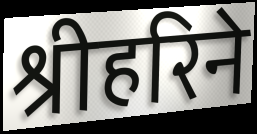
श्रीहरिने